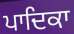
ਪਾਦਿਕਾ